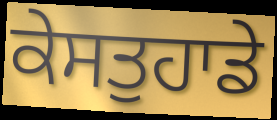
ਕੇਸਤੁਹਾਡੇ